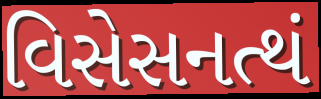
વિસેસનત્થં